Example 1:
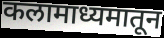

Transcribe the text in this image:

कलामाध्यमातून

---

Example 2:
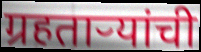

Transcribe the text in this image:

ग्रहताऱ्यांची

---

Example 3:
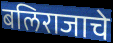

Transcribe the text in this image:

बलिराजाचे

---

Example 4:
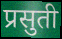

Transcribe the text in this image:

प्रसुती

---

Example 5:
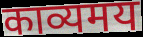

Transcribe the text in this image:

काव्यमय